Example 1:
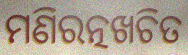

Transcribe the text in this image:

ମଣିରତ୍ନଖଚିତ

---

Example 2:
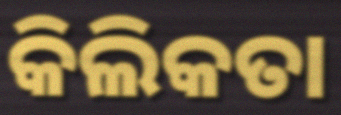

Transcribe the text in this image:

କିଲିକତା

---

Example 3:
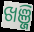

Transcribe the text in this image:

ଖଞ୍ଜି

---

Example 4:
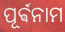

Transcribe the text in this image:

ପୂର୍ଵନାମ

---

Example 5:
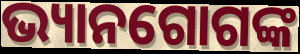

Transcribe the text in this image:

ଭ୍ୟାନଗୋଗଙ୍କ